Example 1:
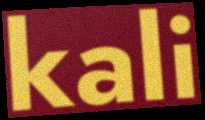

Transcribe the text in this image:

kali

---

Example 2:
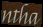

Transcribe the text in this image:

ntha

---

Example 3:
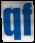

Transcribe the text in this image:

qf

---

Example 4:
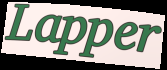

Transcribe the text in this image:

Lapper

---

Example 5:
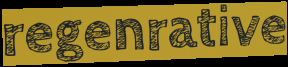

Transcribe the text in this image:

regenrative